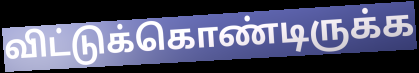
விட்டுக்கொண்டிருக்க